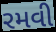
રમવી